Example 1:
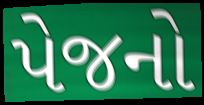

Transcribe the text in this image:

પેજનો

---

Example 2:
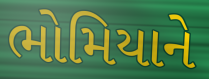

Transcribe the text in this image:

ભોમિયાને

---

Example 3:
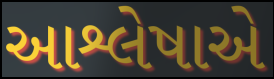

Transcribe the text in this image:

આશ્લેષાએ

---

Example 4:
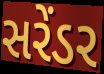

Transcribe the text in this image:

સરેંડર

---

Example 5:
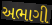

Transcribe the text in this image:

અભાગી